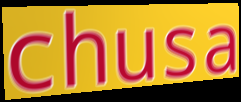
chusa